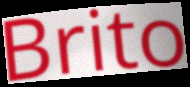
Brito